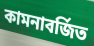
কামনাবর্জিত